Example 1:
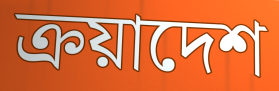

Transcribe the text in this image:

ক্রয়াদেশ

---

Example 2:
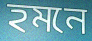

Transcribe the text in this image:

হমনে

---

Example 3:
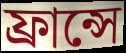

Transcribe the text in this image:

ফ্রান্সে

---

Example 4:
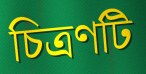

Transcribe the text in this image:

চিত্রণটি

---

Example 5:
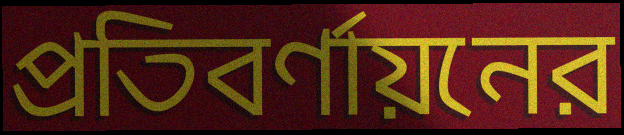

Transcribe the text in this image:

প্রতিবর্ণায়নের